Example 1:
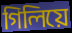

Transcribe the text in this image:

গিলিয়ে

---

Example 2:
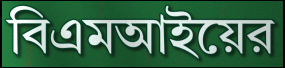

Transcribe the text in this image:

বিএমআইয়ের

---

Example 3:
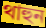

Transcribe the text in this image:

থাহুন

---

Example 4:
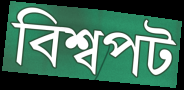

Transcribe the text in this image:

বিশ্বপট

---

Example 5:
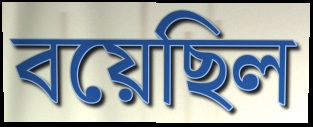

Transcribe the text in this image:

বয়েছিল